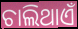
ଚାଲିଥାଏଁ